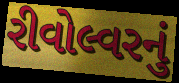
રીવોલ્વરનું